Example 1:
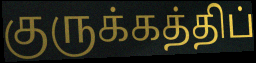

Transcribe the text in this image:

குருக்கத்திப்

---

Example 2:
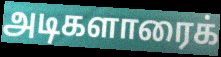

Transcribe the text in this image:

அடிகளாரைக்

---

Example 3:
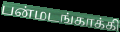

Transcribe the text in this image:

பன்மடங்காக்கி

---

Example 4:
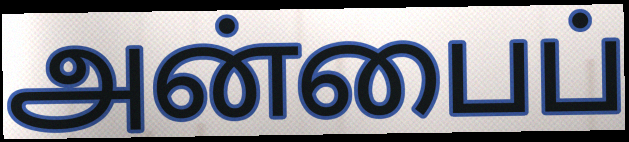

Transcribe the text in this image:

அன்பைப்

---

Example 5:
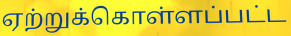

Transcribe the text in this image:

ஏற்றுக்கொள்ளப்பட்ட